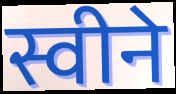
स्वीने